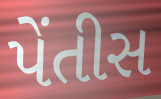
પેંતીસ